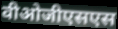
वीओजीएसएस